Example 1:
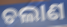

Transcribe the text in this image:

ଚଲାଣ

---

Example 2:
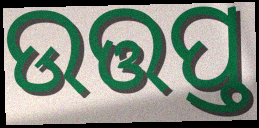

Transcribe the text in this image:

ଉତ୍ତପ୍ତ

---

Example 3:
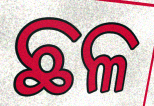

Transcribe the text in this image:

ଛଳ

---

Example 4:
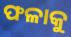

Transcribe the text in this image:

ଫଳାକୁ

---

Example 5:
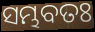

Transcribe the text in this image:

ସମ୍ଭବତଃ